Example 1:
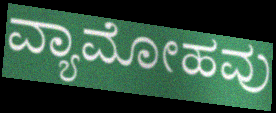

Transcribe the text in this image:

ವ್ಯಾಮೋಹವು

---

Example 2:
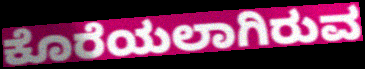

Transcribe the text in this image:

ಕೊರೆಯಲಾಗಿರುವ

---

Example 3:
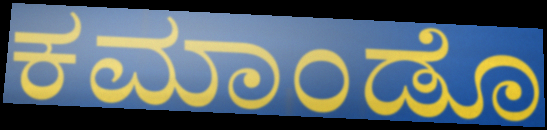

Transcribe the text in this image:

ಕಮಾಂಡೊ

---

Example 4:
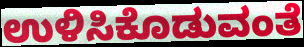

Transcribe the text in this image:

ಉಳಿಸಿಕೊಡುವಂತೆ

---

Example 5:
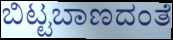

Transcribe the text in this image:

ಬಿಟ್ಟಬಾಣದಂತೆ